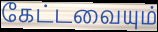
கேட்டவையும்